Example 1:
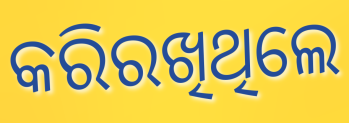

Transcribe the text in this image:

କରିରଖିଥିଲେ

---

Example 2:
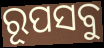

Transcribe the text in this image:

ରୂପସବୁ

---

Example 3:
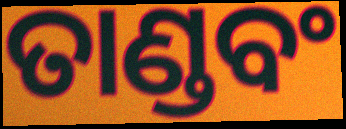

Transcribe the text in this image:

ତାଣ୍ଡବଂ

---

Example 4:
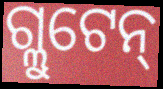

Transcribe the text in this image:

ଗ୍ଲୁଟେନ୍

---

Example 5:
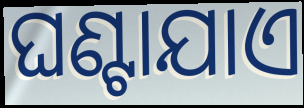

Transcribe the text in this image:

ଘଣ୍ଟାଯାଏ